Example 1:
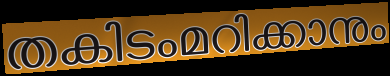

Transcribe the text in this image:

തകിടംമറിക്കാനും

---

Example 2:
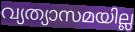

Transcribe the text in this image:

വ്യത്യാസമയില്ല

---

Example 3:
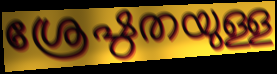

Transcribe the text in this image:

ശ്രേഷ്ഠതയുള്ള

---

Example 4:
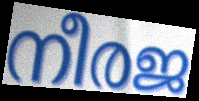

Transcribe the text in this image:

നീരജ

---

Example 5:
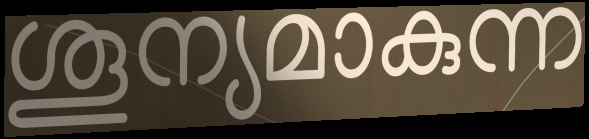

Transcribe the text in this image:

ശൂന്യമാകുന്ന